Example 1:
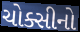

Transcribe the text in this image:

ચોક્સીનો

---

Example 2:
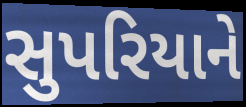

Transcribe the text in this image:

સુપરિયાને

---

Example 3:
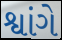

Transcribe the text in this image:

શ્વાંગે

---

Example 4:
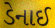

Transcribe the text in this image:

ડેનાઈ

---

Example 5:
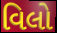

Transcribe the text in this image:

વિલો